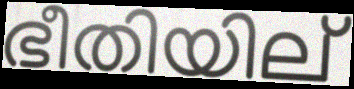
ഭീതിയില്